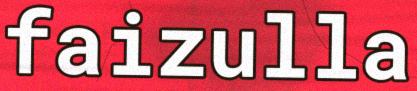
faizulla